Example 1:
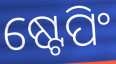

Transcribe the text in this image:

ଷ୍ଟେପିଂ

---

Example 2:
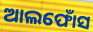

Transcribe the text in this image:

ଆଲଫୋଁସ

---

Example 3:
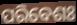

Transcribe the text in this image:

ପରିବେଶଃ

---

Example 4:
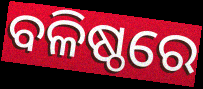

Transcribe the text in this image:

ବଳିଷ୍ଠରେ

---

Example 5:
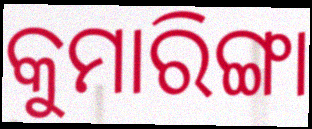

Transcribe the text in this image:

କୁମାରିଙ୍ଗା